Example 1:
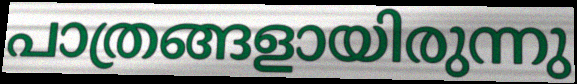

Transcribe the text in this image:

പാത്രങ്ങളായിരുന്നു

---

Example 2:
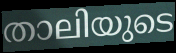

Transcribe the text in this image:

താലിയുടെ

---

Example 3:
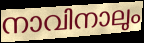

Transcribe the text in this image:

നാവിനാലും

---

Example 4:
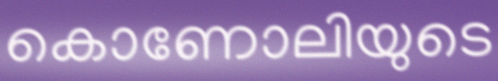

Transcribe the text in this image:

കൊണോലിയുടെ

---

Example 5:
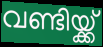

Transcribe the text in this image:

വണ്ടിയ്ക്ക്